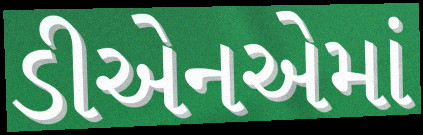
ડીએનએમાં